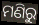
ମଣିରୁ